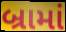
બ્રામાં